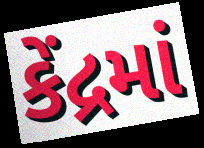
કેંદ્રમાં